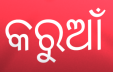
କରୁଆଁ